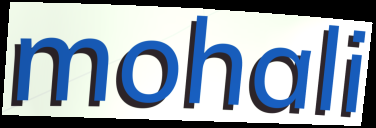
mohali